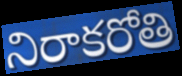
నిరాకరోతి